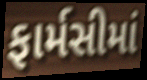
ફાર્મસીમાં